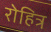
रोहित्र